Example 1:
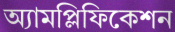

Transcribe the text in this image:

অ্যামপ্লিফিকেশন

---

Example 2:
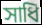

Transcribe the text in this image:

সাধি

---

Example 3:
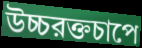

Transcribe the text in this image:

উচ্চরক্তচাপে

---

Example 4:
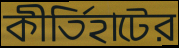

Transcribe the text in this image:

কীর্তিহাটের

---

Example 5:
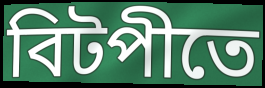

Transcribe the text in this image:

বিটপীতে